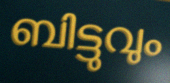
ബിട്ടുവും